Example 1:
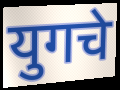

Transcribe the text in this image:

युगचे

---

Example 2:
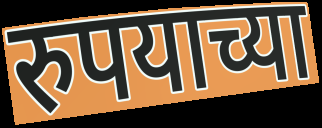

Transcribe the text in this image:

रुपयाच्या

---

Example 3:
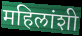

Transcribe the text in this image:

महिलांशी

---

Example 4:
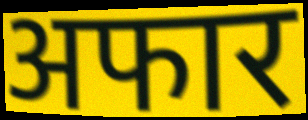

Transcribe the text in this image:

अफार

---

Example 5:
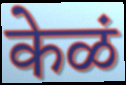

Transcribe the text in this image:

केळं